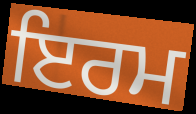
ਇਰਮ